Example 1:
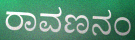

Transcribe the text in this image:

ರಾವಣನಂ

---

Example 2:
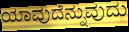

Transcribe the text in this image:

ಯಾವುದೆನ್ನುವುದು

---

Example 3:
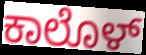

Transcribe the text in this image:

ಕಾಲೊಳ್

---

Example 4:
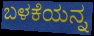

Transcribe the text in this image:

ಬಳಕೆಯನ್ನ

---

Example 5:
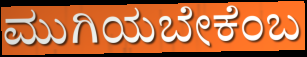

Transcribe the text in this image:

ಮುಗಿಯಬೇಕೆಂಬ